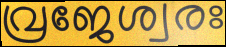
വ്രജേശ്വരഃ